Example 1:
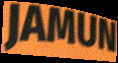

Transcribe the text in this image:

JAMUN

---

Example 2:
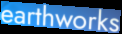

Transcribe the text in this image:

earthworks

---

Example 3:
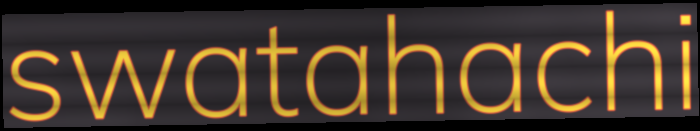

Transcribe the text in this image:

swatahachi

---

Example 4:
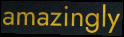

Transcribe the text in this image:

amazingly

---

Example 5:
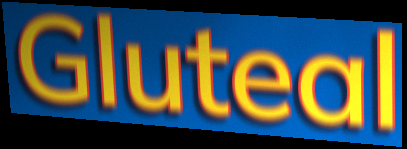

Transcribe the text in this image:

Gluteal